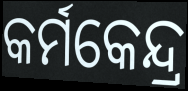
କର୍ମକେନ୍ଦ୍ର